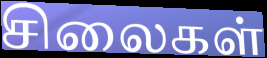
சிலைகள்